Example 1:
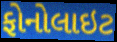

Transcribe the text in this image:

ફોનોલાઇટ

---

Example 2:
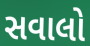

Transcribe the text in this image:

સવાલો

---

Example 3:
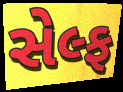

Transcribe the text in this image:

સેલ્ફ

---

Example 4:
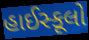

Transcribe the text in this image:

હાઈસ્કૂલો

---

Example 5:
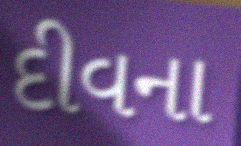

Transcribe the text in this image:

દીવના